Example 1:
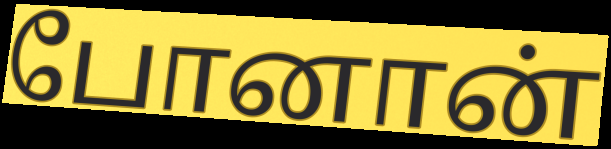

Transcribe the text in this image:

போனான்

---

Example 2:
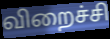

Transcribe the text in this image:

விறைச்சி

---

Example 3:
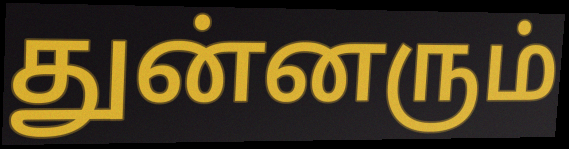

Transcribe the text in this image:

துன்னரும்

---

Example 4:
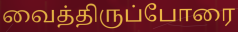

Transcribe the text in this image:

வைத்திருப்போரை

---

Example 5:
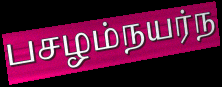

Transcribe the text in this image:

பசழம்நயர்ந